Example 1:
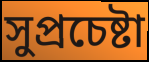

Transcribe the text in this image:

সুপ্রচেষ্টা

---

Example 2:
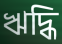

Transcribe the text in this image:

ঋদ্ধি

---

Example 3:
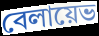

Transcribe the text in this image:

বেলায়েভ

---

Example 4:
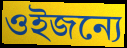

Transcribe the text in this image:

ওইজন্যে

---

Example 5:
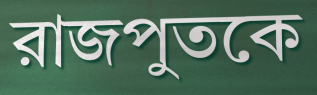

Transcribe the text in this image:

রাজপুতকে